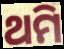
ଥମି